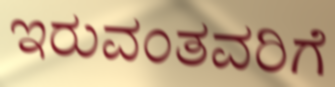
ಇರುವಂತವರಿಗೆ